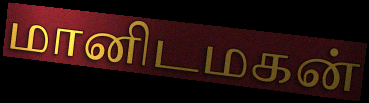
மானிடமகன்